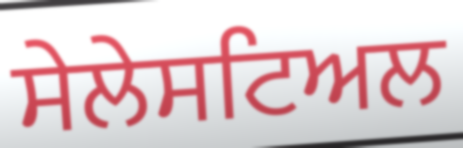
ਸੇਲੇਸਟਿਅਲ